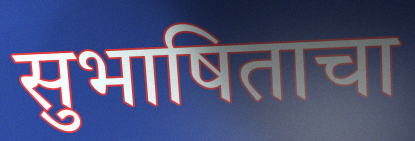
सुभाषिताचा